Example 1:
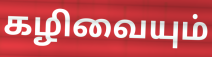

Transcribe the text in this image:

கழிவையும்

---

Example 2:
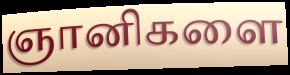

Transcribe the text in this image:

ஞானிகளை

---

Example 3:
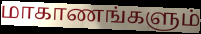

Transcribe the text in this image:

மாகாணங்களும்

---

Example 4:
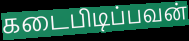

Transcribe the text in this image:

கடைபிடிப்பவன்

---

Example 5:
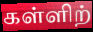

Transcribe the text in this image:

கள்ளிற்